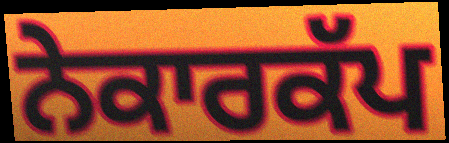
ਨੇਕਾਰਕੱਪ